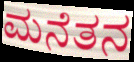
ಮನೆತನ